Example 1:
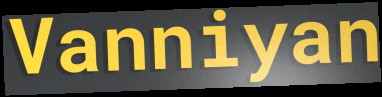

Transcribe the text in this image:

Vanniyan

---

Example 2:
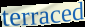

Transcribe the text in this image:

terraced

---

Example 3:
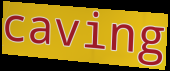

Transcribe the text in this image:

caving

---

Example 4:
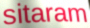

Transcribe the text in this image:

sitaram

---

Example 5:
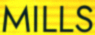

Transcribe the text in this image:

MILLS